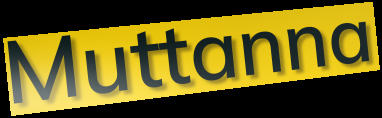
Muttanna